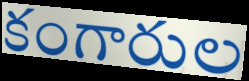
కంగారుల